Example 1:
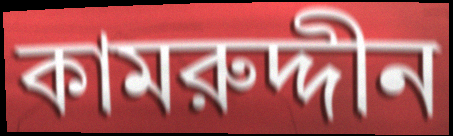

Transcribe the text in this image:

কামরুদ্দীন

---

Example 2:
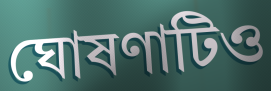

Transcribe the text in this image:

ঘোষণাটিও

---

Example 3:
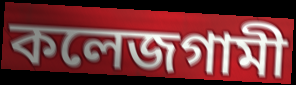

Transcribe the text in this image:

কলেজগামী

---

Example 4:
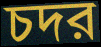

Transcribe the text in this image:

চদর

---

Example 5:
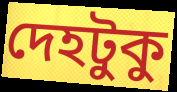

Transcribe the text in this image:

দেহটুকু